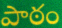
పాఠం